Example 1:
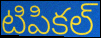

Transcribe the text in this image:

టిపికల్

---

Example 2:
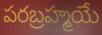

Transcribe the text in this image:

పరబ్రహ్మయే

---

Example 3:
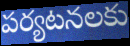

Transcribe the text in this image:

పర్యటనలకు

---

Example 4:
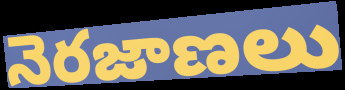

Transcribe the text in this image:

నెరజాణలు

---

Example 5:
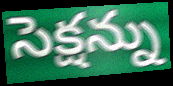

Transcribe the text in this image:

సెక్షన్ను